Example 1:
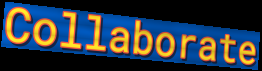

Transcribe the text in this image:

Collaborate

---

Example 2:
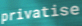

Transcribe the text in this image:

privatise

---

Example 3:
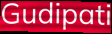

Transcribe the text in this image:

Gudipati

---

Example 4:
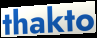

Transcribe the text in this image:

thakto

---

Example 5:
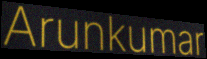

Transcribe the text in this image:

Arunkumar